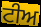
ਟੀਅ